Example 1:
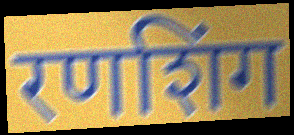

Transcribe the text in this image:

रणशिंग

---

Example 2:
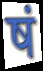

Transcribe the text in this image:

षं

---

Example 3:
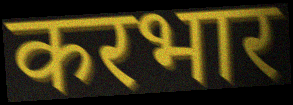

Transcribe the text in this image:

करभार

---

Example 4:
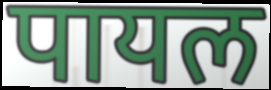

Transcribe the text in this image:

पायल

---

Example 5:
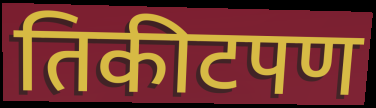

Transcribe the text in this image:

तिकीटपण